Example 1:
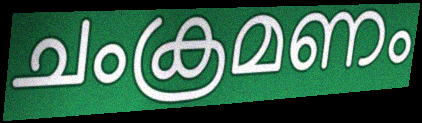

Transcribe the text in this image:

ചംക്രമണം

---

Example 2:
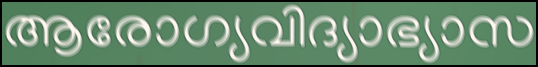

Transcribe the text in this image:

ആരോഗ്യവിദ്യാഭ്യാസ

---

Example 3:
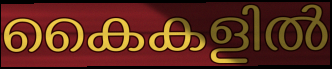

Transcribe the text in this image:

കൈകളിൽ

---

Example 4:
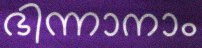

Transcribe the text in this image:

ഭിന്നാനാം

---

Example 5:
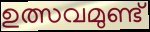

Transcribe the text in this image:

ഉത്സവമുണ്ട്